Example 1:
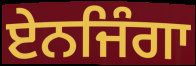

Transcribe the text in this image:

ਏਨਜਿੰਗਾ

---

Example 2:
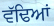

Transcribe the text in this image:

ਵੱਢਿਆਂ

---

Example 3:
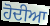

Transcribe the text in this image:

ਹੋਦੀਆ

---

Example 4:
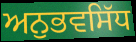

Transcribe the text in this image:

ਅਨੁਭਵਸਿੱਧ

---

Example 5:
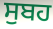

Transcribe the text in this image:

ਸੁਬਹ